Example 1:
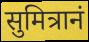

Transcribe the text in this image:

सुमित्रानं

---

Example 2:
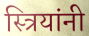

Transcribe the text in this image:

स्त्रियांनी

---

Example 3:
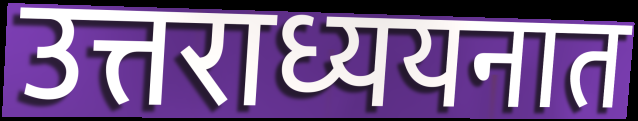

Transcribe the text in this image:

उत्तराध्ययनात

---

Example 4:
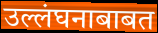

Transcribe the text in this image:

उल्लंघनाबाबत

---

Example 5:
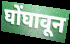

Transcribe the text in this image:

घोंघावून